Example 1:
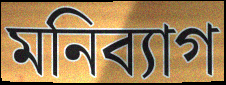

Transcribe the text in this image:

মনিব্যাগ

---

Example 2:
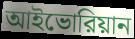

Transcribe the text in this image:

আইভোরিয়ান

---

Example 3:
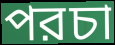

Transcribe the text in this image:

পরচা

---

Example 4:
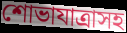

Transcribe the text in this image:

শোভাযাত্রাসহ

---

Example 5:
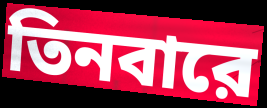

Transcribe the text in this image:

তিনবারে